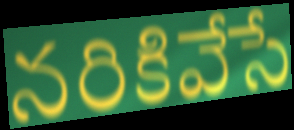
నరికివేసే